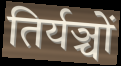
तिर्यञ्चों